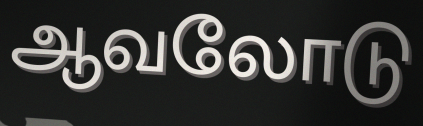
ஆவலோடு